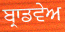
ਬ੍ਰਾਡਵੇਅ